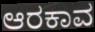
ಆರಕಾವ